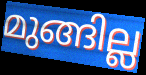
മുങ്ങില്ല